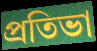
প্ৰতিভা